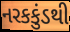
નરકકુંડથી